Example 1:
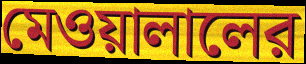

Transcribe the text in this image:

মেওয়ালালের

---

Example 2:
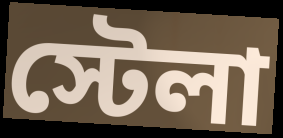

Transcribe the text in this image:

স্টেলা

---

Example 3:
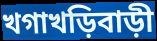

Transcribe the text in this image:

খগাখড়িবাড়ী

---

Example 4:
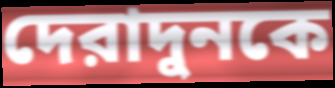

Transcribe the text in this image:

দেরাদুনকে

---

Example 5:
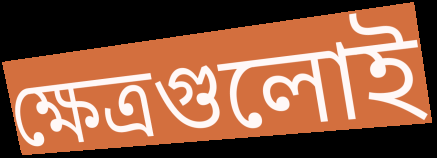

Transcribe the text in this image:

ক্ষেত্রগুলোই